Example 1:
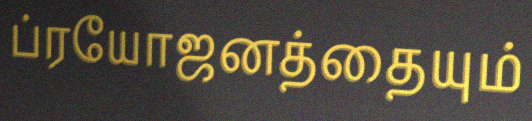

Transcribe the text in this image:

ப்ரயோஜனத்தையும்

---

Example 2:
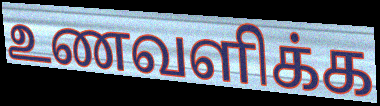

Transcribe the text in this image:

உணவளிக்க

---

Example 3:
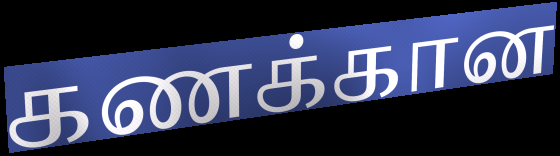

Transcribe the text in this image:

கணக்கான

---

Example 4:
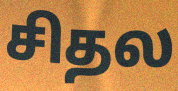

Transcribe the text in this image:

சிதல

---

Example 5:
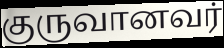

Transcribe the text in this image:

குருவானவர்